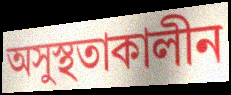
অসুস্থতাকালীন